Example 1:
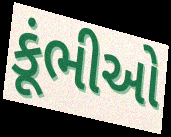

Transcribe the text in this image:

કૂંભીઓ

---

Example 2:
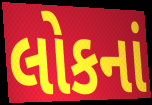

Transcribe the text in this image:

લોકનાં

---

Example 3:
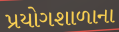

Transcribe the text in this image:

પ્રયોગશાળાના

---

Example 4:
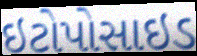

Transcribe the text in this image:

ઇટોપોસાઇડ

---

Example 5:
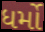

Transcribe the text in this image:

ધર્મો